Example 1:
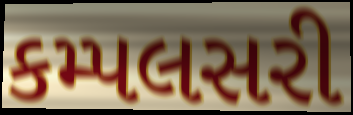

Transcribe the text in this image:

કમ્પલસરી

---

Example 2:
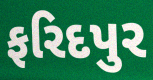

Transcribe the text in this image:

ફરિદપુર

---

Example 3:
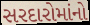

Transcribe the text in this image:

સરદારોમાંનો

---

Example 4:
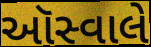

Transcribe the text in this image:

ઑસ્વાલે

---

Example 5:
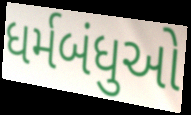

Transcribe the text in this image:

ધર્મબંધુઓ